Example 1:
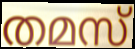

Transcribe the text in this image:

തമസ്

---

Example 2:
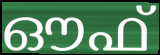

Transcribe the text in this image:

ഔഫ്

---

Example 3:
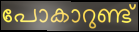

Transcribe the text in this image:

പോകാറുണ്ട്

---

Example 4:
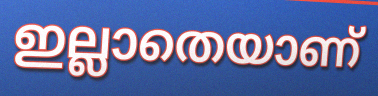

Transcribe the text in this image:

ഇല്ലാതെയാണ്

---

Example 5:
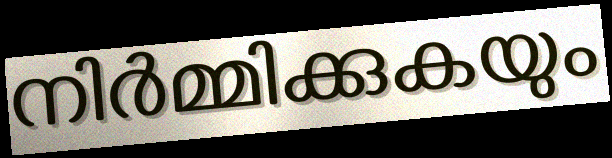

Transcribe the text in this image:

നിർമ്മിക്കുകയും